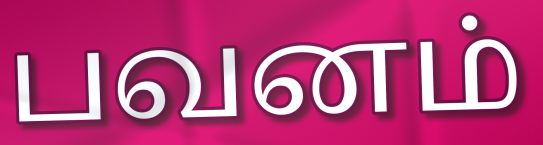
பவனம்